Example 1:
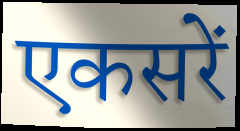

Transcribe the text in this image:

एकसरें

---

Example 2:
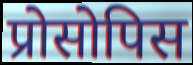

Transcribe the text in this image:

प्रोसोपिस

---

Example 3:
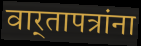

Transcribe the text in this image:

वार्तापत्रांना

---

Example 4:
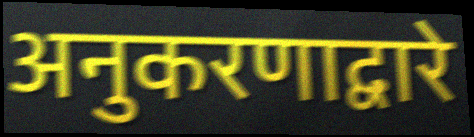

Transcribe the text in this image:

अनुकरणाद्वारे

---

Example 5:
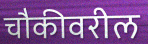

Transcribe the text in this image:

चौकीवरील